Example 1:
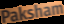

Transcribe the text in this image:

Paksham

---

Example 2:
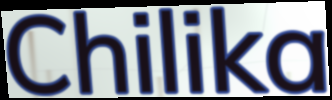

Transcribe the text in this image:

Chilika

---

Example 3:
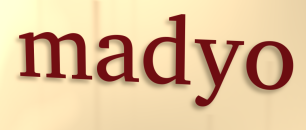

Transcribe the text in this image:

madyo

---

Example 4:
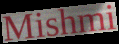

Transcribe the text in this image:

Mishmi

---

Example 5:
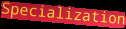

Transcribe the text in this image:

Specialization